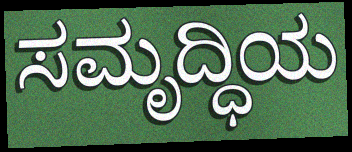
ಸಮೃದ್ಧಿಯ